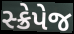
સ્ક્રેપેજ